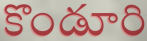
కొండూరి